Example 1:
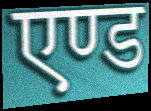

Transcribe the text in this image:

एण्ड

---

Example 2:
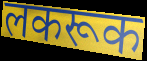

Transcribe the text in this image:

लकरूक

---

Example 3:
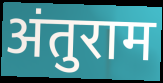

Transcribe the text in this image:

अंतुराम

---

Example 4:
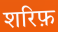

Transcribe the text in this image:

शरिफ़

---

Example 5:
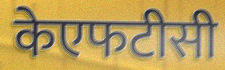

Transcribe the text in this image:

केएफटीसी